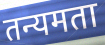
तन्यमता